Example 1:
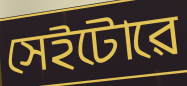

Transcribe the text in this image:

সেইটোৱে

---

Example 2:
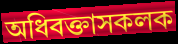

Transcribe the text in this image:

অধিবক্তাসকলক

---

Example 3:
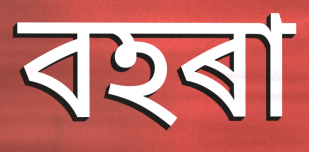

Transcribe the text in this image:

বহৰা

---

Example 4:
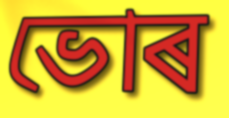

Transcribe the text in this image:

ভোৰ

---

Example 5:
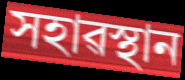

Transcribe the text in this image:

সহাৱস্থান